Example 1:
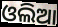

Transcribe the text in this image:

ଓଲିଆ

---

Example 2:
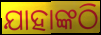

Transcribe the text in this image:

ଯାହାଙ୍କଠି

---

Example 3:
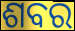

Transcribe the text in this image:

ଶବର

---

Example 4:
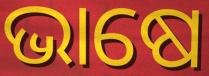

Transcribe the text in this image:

ଭାଷେ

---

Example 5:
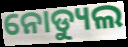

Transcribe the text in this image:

ନୋଡ୍ୟୁଲ